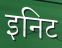
इनिट